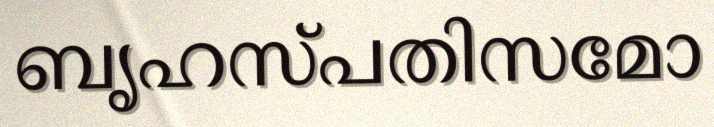
ബൃഹസ്പതിസമോ